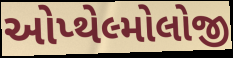
ઓપ્થેલ્મોલોજી